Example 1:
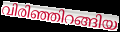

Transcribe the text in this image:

വിരിഞ്ഞിറങ്ങിയ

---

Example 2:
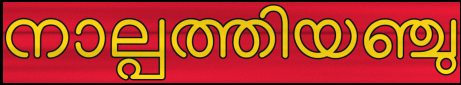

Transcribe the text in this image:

നാല്പത്തിയഞ്ചു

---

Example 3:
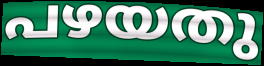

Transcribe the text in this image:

പഴയതു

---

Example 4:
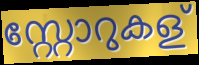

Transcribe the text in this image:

സ്റ്റോറുകള്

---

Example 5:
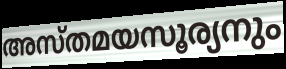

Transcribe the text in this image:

അസ്തമയസൂര്യനും